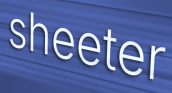
sheeter